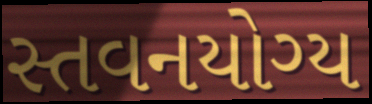
સ્તવનયોગ્ય